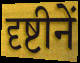
दृष्टीनें